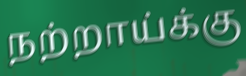
நற்றாய்க்கு